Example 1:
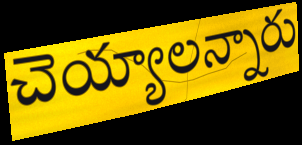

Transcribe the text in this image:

చెయ్యాలన్నారు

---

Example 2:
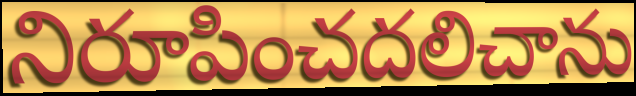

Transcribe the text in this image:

నిరూపించదలిచాను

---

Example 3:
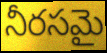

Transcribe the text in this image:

నీరసమై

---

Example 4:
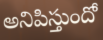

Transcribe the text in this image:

అనిపిస్తుందో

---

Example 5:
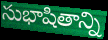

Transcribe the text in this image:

సుభాషితాన్ని